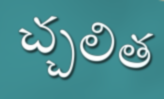
చ్చలిత